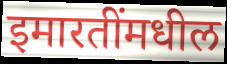
इमारतींमधील